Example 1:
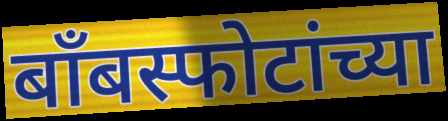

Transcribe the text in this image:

बॉंबस्फोटांच्या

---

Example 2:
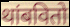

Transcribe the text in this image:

थांबवितो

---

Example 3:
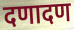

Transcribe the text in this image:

दणादण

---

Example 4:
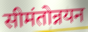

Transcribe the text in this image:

सीमंतोन्नयन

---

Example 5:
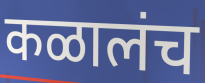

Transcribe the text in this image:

कळालंच